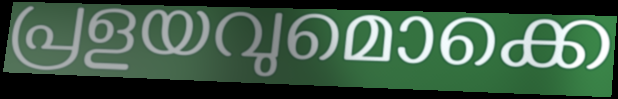
പ്രളയവുമൊക്കെ